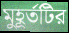
মুহূর্তটির